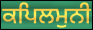
ਕਪਿਲਮੁਨੀ